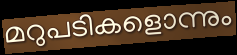
മറുപടികളൊന്നും